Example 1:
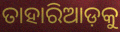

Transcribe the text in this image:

ତାହାରିଆଡ଼କୁ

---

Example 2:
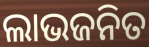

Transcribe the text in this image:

ଲାଭଜନିତ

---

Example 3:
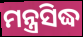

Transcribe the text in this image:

ମନ୍ତ୍ରସିଦ୍ଧ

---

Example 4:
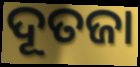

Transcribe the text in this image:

ଦୂତଜା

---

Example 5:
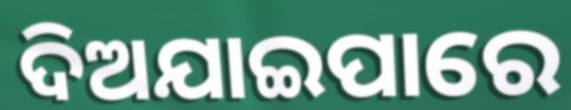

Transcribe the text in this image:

ଦିଅଯାଇପାରେ